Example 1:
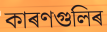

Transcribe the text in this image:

কাৰণগুলিৰ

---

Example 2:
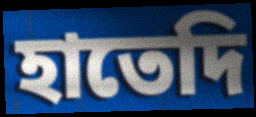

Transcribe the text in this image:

হাতেদি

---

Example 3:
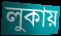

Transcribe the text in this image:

লুকায়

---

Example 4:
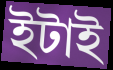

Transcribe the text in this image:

ইটাই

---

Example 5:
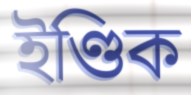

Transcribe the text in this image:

ইণ্ডিক